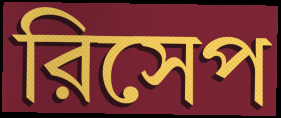
রিসেপ